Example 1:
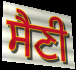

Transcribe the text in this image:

ਸੈਣੀ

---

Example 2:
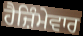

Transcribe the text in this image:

ਹੈਜ਼ਿੰਮੇਵਾਰ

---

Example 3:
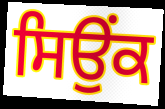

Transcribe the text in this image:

ਸਿਉਂਕ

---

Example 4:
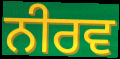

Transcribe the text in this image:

ਨੀਰਵ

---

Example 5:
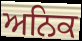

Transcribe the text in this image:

ਅਨਿਕ